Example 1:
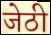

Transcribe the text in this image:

जेठी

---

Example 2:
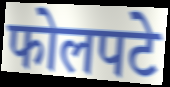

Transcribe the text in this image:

फोलपटे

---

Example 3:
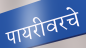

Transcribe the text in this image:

पायरीवरचे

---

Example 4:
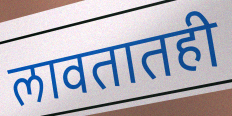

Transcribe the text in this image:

लावतातही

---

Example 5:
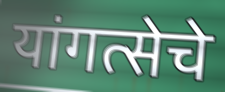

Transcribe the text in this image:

यांगत्सेचे